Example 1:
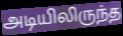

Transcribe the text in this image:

அடியிலிருந்த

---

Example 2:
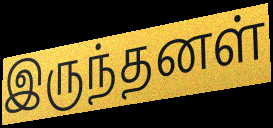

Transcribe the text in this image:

இருந்தனள்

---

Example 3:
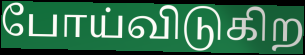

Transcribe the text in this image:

போய்விடுகிற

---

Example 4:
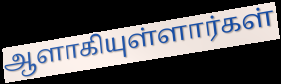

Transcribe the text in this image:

ஆளாகியுள்ளார்கள்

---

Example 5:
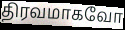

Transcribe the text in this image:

திரவமாகவோ